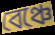
বেঞ্চে